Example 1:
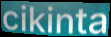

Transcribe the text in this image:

cikinta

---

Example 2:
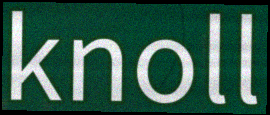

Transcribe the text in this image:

knoll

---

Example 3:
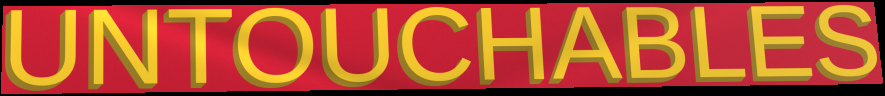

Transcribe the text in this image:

UNTOUCHABLES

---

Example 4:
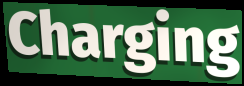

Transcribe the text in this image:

Charging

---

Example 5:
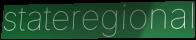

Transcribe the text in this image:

stateregional